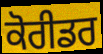
ਕੋਰੀਡਰ